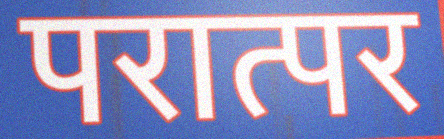
परात्पर